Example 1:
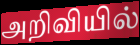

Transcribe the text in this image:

அறிவியில்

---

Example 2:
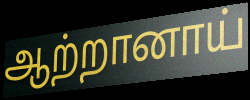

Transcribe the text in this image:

ஆற்றானாய்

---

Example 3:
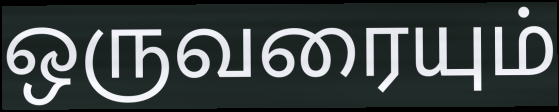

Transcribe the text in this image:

ஒருவரையும்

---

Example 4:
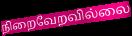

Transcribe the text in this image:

நிறைவேறவில்லை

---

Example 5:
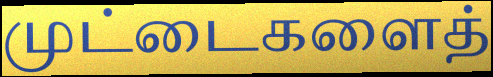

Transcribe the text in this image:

முட்டைகளைத்